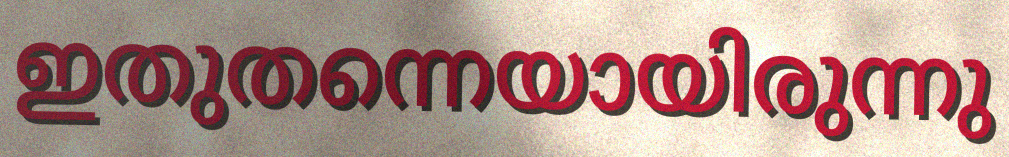
ഇതുതന്നെയായിരുന്നു